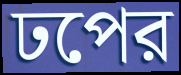
ঢপের